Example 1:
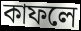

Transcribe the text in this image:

কাফলে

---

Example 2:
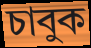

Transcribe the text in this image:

চাবুক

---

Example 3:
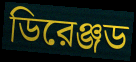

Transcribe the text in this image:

ডিরেঞ্জড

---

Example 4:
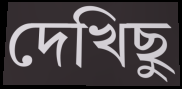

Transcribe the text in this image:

দেখিছু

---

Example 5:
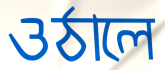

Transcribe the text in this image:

ওঠালে